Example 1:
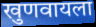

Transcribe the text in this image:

खुणवायला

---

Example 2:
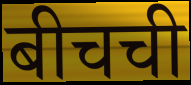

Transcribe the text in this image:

बीचची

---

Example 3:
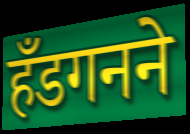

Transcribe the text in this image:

हँडगनने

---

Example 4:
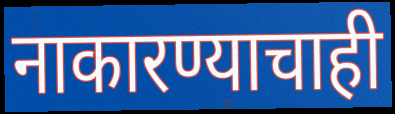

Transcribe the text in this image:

नाकारण्याचाही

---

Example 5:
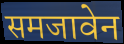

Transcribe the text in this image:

समजावेन